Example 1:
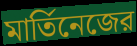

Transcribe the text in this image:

মার্তিনেজের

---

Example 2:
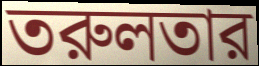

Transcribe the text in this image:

তরুলতার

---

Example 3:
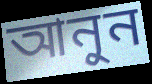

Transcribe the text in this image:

আনুন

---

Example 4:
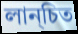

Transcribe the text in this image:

লান্চিত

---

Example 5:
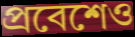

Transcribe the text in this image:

প্রবেশেও